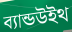
ব্যান্ডউইথ